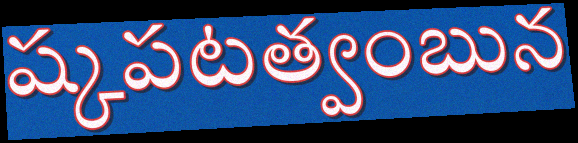
ష్కపటత్వంబున